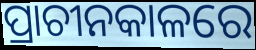
ପ୍ରାଚୀନକାଳରେ